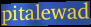
pitalewad